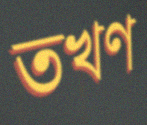
তখণ